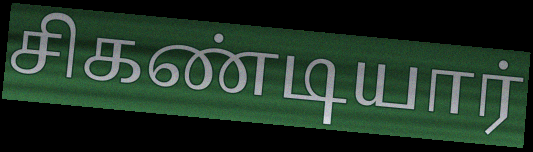
சிகண்டியார்